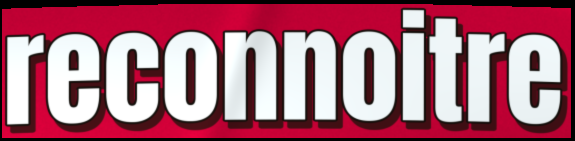
reconnoitre